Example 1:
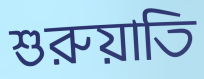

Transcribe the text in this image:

শুরুয়াতি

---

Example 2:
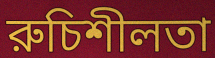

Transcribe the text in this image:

রুচিশীলতা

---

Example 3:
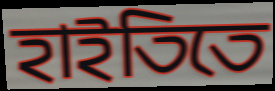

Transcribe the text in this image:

হাইতিতে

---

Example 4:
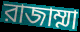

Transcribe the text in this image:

রাজাম্মা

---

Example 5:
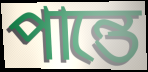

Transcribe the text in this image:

পান্তে